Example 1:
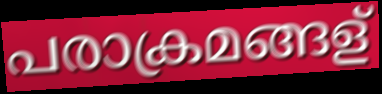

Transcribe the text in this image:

പരാക്രമങ്ങള്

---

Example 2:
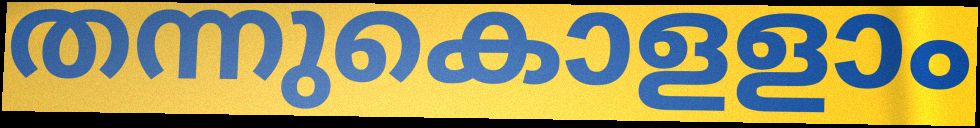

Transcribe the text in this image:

തന്നുകൊളളാം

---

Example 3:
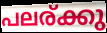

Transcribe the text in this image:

പലര്ക്കു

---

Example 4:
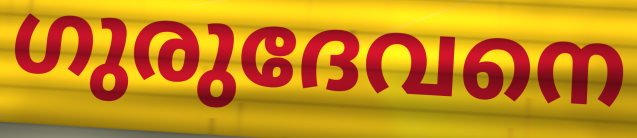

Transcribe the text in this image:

ഗുരുദേവനെ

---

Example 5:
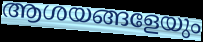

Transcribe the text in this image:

ആശയങ്ങളേയും